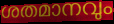
ശതമാനവും